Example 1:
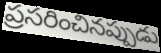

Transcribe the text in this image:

ప్రసరించినప్పుడు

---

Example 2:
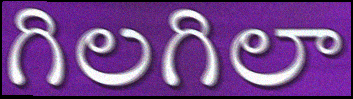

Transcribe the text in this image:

గిలగిలా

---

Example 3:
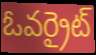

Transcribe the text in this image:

ఓవర్రైట్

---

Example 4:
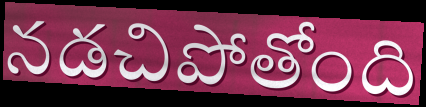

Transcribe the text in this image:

నడచిపోతోంది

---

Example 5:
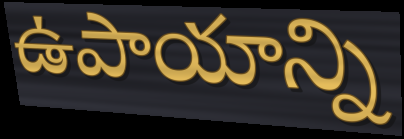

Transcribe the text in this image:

ఉపాయాన్ని